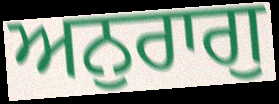
ਅਨੁਰਾਗੁ